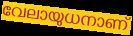
വേലായുധനാണ്